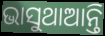
ଭାସୁଥାଆନ୍ତି